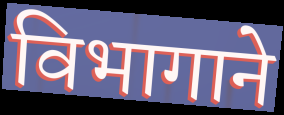
विभागाने